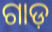
ଗାଡ଼